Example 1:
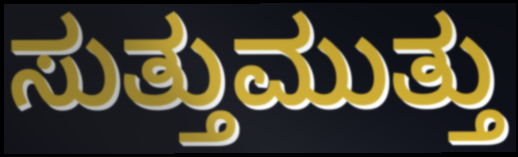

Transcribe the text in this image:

ಸುತ್ತುಮುತ್ತು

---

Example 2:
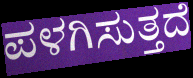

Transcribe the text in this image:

ಪಳಗಿಸುತ್ತದೆ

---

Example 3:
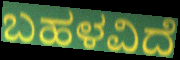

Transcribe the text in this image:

ಬಹಳವಿದೆ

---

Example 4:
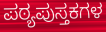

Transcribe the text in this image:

ಪಠ್ಯಪುಸ್ತಕಗಳ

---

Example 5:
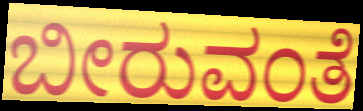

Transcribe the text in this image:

ಬೀರುವಂತೆ